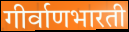
गीर्वाणभारती